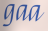
gaa